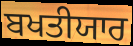
ਬਖਤੀਯਾਰ